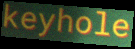
keyhole